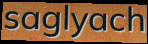
saglyach